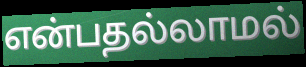
என்பதல்லாமல்